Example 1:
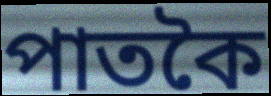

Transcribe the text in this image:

পাতকৈ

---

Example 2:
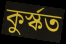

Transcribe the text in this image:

কুৰ্স্কত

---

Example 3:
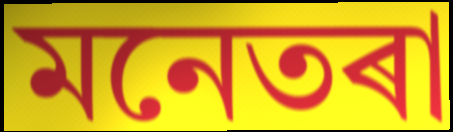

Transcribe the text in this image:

মনেতৰা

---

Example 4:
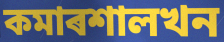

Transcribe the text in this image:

কমাৰশালখন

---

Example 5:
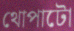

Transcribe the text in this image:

থোপাটো